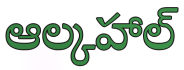
ఆల్కహాల్